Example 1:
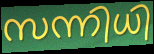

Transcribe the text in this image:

സന്നിധി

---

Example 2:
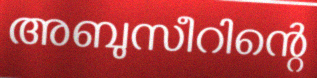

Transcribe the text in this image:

അബുസീറിന്റെ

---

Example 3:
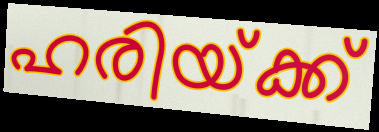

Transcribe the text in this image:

ഹരിയ്‌ക്ക്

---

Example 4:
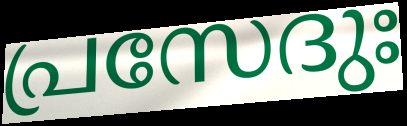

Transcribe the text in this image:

പ്രസേദുഃ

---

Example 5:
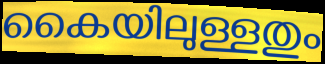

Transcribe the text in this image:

കൈയിലുള്ളതും